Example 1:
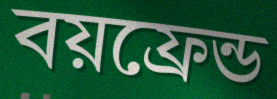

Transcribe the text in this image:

বয়ফ্রেন্ড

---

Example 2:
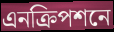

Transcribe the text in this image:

এনক্রিপশনে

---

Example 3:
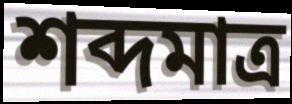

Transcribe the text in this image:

শব্দমাত্র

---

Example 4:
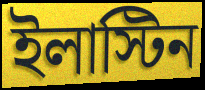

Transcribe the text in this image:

ইলাস্টিন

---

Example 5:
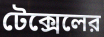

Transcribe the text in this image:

টেক্সেলের